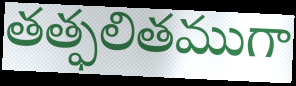
తత్ఫలితముగా